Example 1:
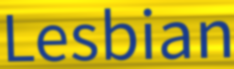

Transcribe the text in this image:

Lesbian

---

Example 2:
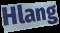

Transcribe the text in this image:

Hlang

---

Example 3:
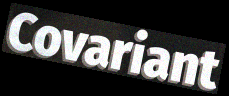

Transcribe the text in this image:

Covariant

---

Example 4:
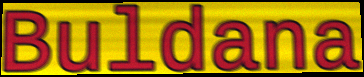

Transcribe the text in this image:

Buldana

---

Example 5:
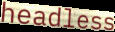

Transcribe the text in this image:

headless